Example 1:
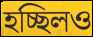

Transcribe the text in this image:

হচ্ছিলও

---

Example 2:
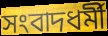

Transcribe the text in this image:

সংবাদধর্মী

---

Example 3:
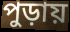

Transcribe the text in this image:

পুড়ায়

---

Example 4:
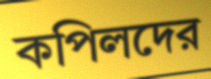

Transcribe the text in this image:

কপিলদের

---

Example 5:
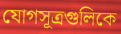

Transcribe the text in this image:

যোগসূত্রগুলিকে